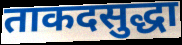
ताकदसुद्धा